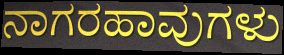
ನಾಗರಹಾವುಗಳು